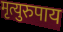
मृत्युरुपाय